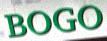
BOGO